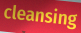
cleansing